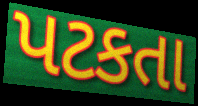
પટકતા